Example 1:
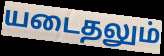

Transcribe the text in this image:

யடைதலும்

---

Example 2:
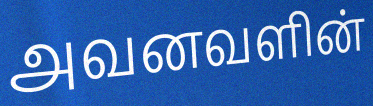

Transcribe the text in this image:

அவனவளின்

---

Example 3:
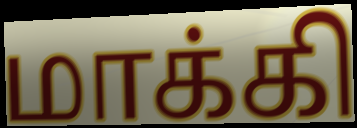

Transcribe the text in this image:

மாக்கி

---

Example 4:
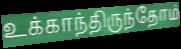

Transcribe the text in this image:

உக்காந்திருந்தோம்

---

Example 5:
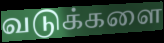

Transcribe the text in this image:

வடுக்களை